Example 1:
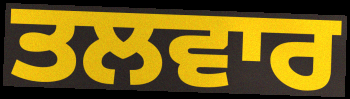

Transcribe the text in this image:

ਤਲਵਾਰ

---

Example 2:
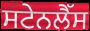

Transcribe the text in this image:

ਸਟੇਨਲੈੱਸ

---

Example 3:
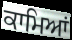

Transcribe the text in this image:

ਕਾਮਿਆਂ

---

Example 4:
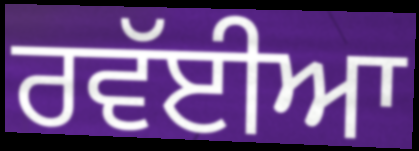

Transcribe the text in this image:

ਰਵੱਈਆ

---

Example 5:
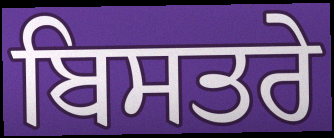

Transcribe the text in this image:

ਬਿਸਤਰੇ